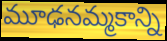
మూఢనమ్మకాన్ని